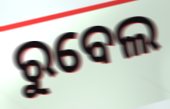
ରୁବେଲ